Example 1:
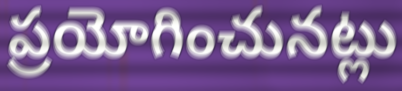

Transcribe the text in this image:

ప్రయోగించునట్లు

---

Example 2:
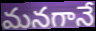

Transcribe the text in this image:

మనగానే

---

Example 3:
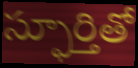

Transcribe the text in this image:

స్ఫూర్తితో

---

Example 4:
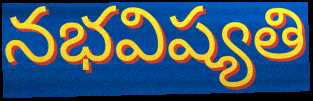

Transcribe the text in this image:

నభవిష్యతి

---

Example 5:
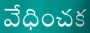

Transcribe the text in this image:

వేధించక